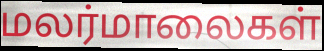
மலர்மாலைகள்